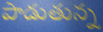
పాడుతున్న